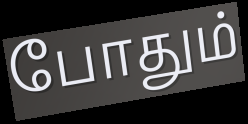
போதும்